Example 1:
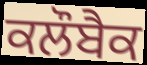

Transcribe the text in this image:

ਕਲੌਬੈਕ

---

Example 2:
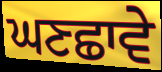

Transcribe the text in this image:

ਘਣਛਾਵੇ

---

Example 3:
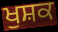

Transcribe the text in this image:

ਖੁਸ਼ਕ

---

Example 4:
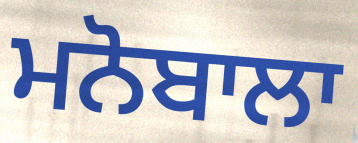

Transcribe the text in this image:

ਮਨੋਬਾਲਾ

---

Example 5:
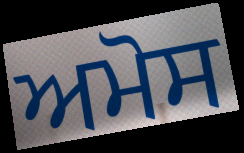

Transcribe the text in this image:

ਅਮੋਸ